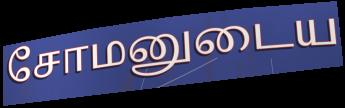
சோமனுடைய